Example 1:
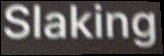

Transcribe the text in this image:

Slaking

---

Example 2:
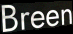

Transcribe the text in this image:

Breen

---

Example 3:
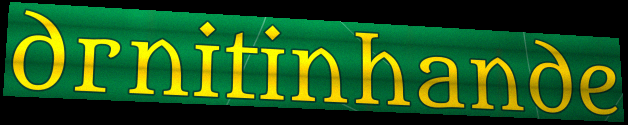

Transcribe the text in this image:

drnitinhande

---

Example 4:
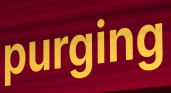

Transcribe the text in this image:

purging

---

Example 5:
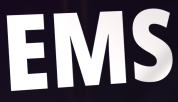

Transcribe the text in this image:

EMS